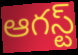
ఆగస్ట్